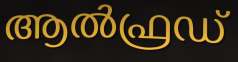
ആൽഫ്രഡ്